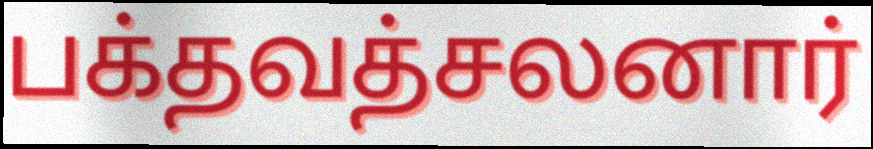
பக்தவத்சலனார்